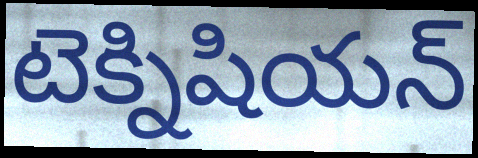
టెక్నిషియన్